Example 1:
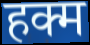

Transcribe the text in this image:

हक्म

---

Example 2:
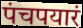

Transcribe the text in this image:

पंचपयारं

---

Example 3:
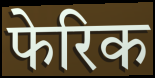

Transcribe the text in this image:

फेरिक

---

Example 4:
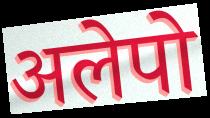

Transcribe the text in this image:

अलेपो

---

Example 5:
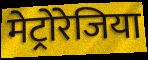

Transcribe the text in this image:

मेट्रोरेजिया